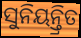
ସୁନିୟନ୍ତ୍ରିତ